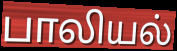
பாலியல்